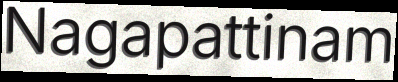
Nagapattinam